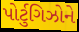
પોર્ટુગિઝોને